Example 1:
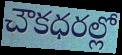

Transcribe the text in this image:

చౌకధరల్లో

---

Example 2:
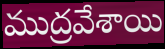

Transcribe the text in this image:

ముద్రవేశాయి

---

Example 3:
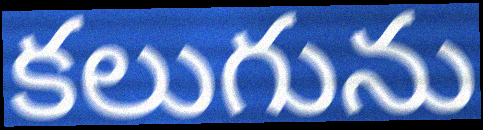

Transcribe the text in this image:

కలుగును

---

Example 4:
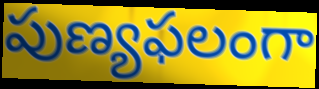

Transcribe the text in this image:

పుణ్యఫలంగా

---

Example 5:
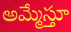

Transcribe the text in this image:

అమ్మేస్తూ